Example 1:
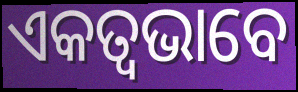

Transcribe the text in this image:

ଏକତ୍ଵଭାବେ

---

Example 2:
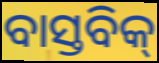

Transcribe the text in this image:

ବାସ୍ତବିକ୍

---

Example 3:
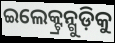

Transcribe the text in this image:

ଇଲେକ୍ଟ୍ରନ୍ଗୁଡ଼ିକୁ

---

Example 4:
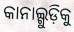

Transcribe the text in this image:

କାନାଲ୍ଗୁଡ଼ିକୁ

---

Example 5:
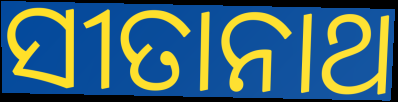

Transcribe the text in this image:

ସୀତାନାଥ